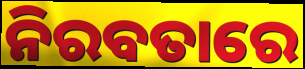
ନିରବତାରେ